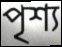
পৃশ্য